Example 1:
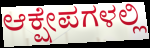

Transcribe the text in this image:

ಆಕ್ಷೇಪಗಳಲ್ಲಿ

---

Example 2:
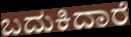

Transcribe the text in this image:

ಬದುಕಿದಾರೆ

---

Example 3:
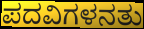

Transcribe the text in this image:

ಪದವಿಗಳನತು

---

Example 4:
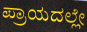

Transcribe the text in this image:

ಪ್ರಾಯದಲ್ಲೇ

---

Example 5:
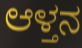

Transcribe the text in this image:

ಆಳ್ತನ